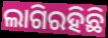
ଲାଗିରହିଛି